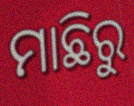
ମାଛିରୁ